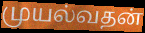
முயல்வதன்